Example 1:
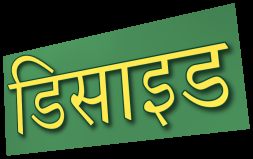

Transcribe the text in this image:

डिसाइड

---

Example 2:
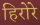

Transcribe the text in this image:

हिरोरे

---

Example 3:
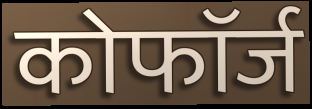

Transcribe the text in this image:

कोफॉर्ज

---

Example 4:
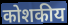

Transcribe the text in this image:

कोशकीय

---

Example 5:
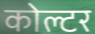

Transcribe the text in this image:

कोल्टर